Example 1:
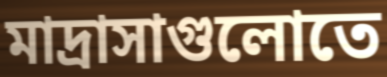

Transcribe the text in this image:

মাদ্রাসাগুলোতে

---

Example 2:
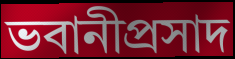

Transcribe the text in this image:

ভবানীপ্রসাদ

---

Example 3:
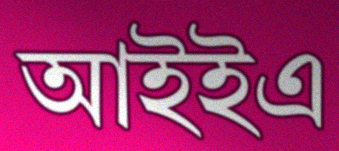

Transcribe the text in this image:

আইইএ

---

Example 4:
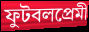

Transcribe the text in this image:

ফুটবলপ্রেমী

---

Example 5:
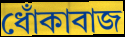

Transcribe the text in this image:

ধোঁকাবাজ